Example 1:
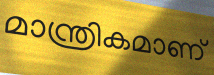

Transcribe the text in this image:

മാന്ത്രികമാണ്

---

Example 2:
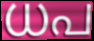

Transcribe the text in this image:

ധപ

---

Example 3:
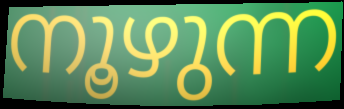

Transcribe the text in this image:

നൂഴുന്ന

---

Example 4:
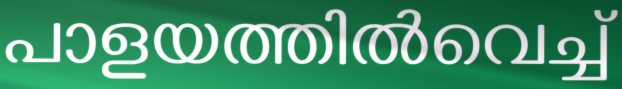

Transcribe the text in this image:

പാളയത്തിൽവെച്ച്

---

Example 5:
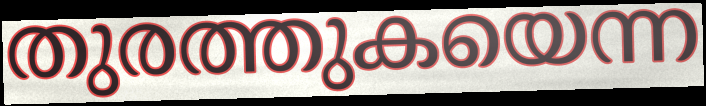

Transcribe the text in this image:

തുരത്തുകയെന്ന